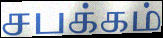
சபக்கம்